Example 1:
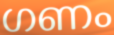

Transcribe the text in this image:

ഗണം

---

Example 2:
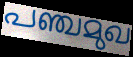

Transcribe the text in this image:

പഞ്ചമുഖ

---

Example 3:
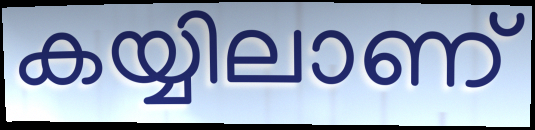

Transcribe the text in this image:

കയ്യിലാണ്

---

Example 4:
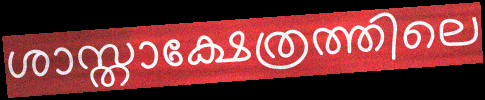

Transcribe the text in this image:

ശാസ്താക്ഷേത്രത്തിലെ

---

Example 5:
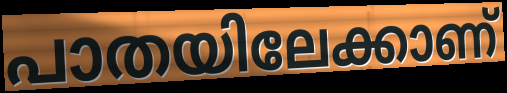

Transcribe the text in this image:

പാതയിലേക്കാണ്